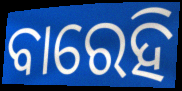
ବାରେହି